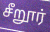
சீறூர்